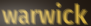
warwick